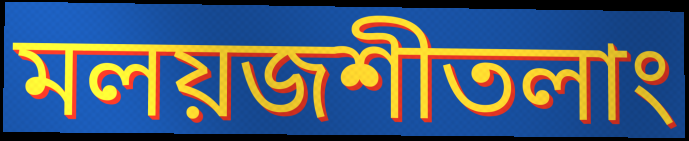
মলয়জশীতলাং